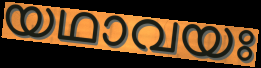
യഥാവയഃ